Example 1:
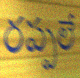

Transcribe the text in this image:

రప్పలే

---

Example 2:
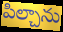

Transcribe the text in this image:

పిల్చాను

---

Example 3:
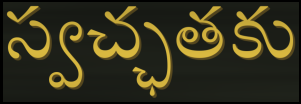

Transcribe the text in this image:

స్వచ్ఛతకు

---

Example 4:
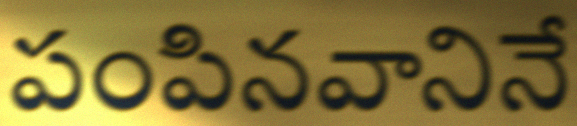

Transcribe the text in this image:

పంపినవానినే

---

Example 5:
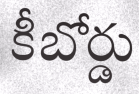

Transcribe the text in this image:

కీబోర్డు